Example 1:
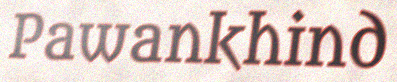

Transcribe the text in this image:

Pawankhind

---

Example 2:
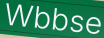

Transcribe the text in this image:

Wbbse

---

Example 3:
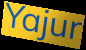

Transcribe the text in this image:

Yajur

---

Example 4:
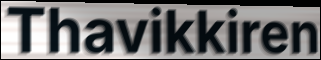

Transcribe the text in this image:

Thavikkiren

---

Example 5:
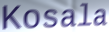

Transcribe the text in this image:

Kosala